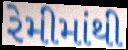
રેમીમાંથી